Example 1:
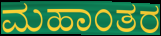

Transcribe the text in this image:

ಮಹಾಂತರ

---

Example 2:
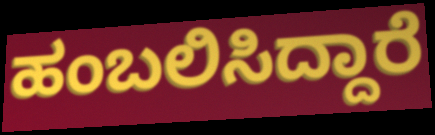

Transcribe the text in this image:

ಹಂಬಲಿಸಿದ್ದಾರೆ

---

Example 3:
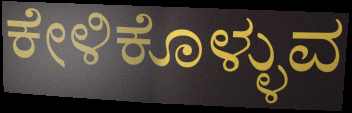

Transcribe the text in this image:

ಕೇಳಿಕೊಳ್ಳುವ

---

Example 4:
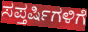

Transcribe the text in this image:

ಸಪ್ತರ್ಷಿಗಳಿಗೆ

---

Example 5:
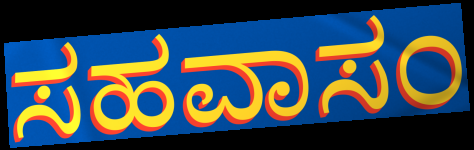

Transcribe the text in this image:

ಸಹವಾಸಂ